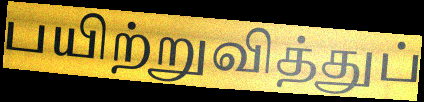
பயிற்றுவித்துப்